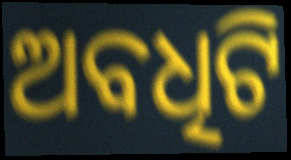
ଅବଧିଟି